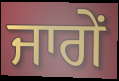
ਜਾਗੇਂ